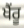
ਖੈਂਰੂ